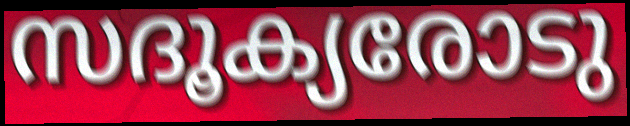
സദൂക്യരോടു